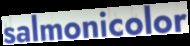
salmonicolor